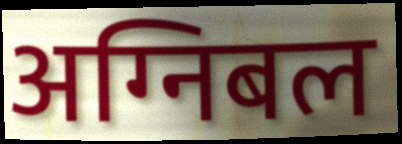
अग्निबल